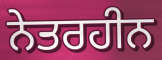
ਨੇਤਰਹੀਨ